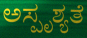
ಅಸ್ಪೃಶ್ಯತೆ